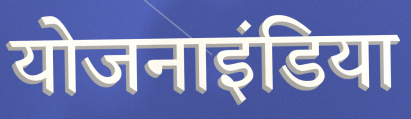
योजनाइंडिया